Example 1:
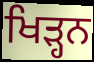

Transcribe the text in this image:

ਖਿੜ੍ਹਨ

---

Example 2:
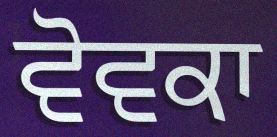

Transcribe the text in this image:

ਵੋਵਕਾ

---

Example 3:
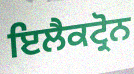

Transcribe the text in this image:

ਇਲੈਕਟ੍ਰੋਨ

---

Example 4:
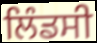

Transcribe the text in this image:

ਲਿੰਡਸੀ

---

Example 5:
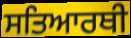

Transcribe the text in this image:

ਸਤਿਆਰਥੀ